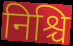
निश्चि